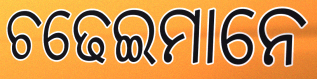
ଚଢେଇମାନେ